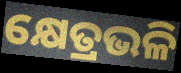
କ୍ଷେତ୍ରଭଳି